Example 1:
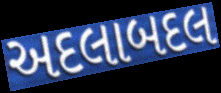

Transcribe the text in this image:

અદલાબદલ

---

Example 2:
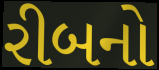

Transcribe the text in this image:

રીબનો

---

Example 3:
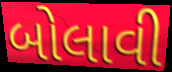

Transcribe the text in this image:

બોલાવી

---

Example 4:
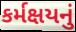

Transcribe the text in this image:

કર્મક્ષયનું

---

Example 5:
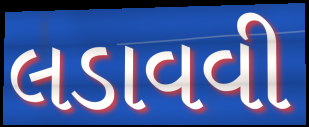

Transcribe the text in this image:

લડાવવી